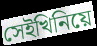
সেইখিনিয়ে